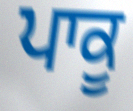
ਪਾਕੂ